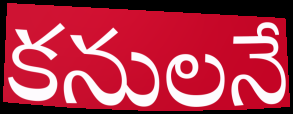
కనులనే